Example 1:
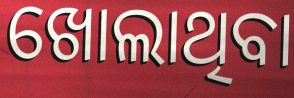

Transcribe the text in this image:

ଖୋଲାଥିବା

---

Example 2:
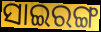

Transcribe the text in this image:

ସାଇରଙ୍ଗ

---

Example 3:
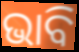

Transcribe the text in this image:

ଭାବି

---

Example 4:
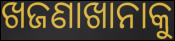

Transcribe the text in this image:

ଖଜଣାଖାନାକୁ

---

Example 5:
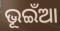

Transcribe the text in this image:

ଭୂଇଁଆ